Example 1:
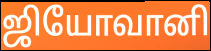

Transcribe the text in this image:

ஜியோவானி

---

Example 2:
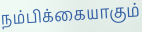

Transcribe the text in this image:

நம்பிக்கையாகும்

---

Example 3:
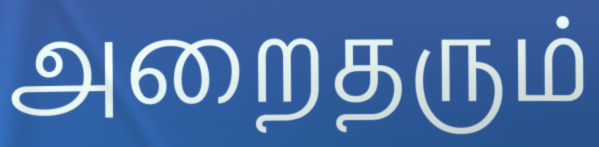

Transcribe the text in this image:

அறைதரும்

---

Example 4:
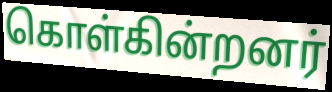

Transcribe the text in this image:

கொள்கின்றனர்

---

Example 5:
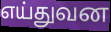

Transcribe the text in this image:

எய்துவன